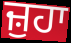
ਜ਼ੁਹਾ